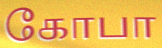
கோபா